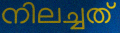
നിലച്ചത്